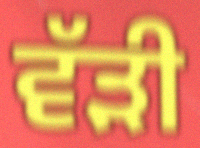
ਵੱੜੀ